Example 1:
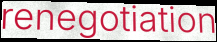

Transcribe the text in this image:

renegotiation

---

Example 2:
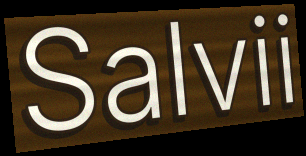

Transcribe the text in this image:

Salvii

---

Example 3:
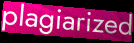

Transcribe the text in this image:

plagiarized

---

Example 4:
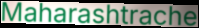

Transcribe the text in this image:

Maharashtrache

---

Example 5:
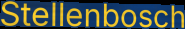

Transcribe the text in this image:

Stellenbosch